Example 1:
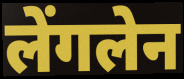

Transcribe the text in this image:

लेंगलेन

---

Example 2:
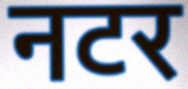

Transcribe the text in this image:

नटर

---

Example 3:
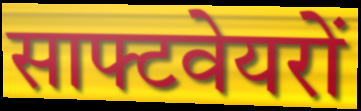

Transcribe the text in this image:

साफ्टवेयरों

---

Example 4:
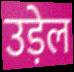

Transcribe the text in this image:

उड़ेल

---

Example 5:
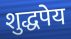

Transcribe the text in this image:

शुद्धपेय